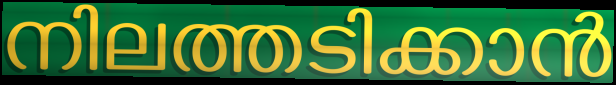
നിലത്തടിക്കാൻ